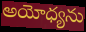
అయోధ్యను